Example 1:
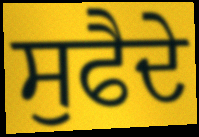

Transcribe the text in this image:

ਸੁਫੈਦੇ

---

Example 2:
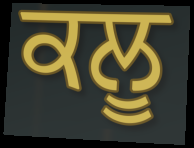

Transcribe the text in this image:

ਕਲੂ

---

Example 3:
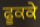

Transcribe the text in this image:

ਫੂਕਕੇ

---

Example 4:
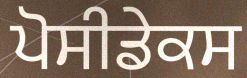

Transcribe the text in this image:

ਪੋਸੀਡੇਕਸ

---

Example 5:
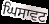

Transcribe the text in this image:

ਘਿਸਾਵਟ